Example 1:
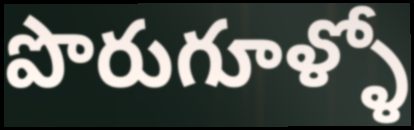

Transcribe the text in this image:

పొరుగూళ్ళో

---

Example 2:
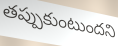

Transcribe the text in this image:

తప్పుకుంటుందని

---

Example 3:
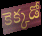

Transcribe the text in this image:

కెక్కడో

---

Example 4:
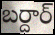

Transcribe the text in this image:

బర్దార్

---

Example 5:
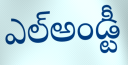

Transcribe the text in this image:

ఎల్అండ్టీ